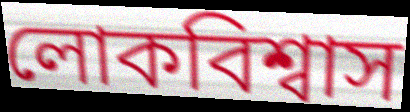
লোকবিশ্বাস